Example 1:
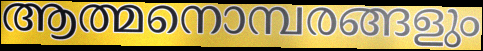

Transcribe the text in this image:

ആത്മനൊമ്പരങ്ങളും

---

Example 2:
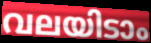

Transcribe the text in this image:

വലയിടാം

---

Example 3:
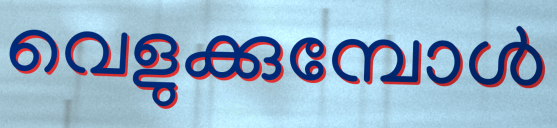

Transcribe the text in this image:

വെളുക്കുമ്പോൾ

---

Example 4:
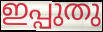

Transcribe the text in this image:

ഇപ്പുതു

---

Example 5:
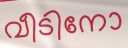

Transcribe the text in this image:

വീടിനോ